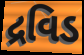
દ્રવિડ